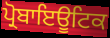
ਪ੍ਰੋਬਾਇਊਟਿਕ